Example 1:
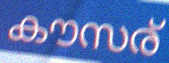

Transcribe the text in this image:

കൗസര്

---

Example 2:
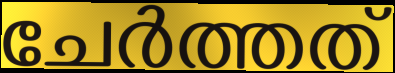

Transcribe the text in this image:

ചേർത്തത്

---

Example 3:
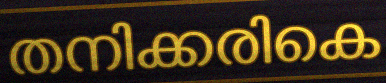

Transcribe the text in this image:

തനിക്കരികെ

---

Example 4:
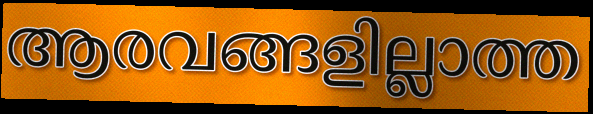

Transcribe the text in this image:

ആരവങ്ങളില്ലാത്ത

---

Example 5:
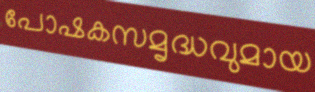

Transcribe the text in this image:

പോഷകസമൃദ്ധവുമായ